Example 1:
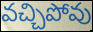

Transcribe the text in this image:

వచ్చిపోవు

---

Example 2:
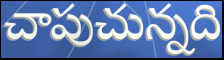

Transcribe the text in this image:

చాపుచున్నది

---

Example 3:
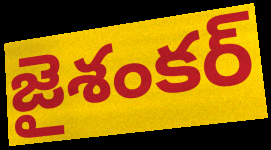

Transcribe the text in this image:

జైశంకర్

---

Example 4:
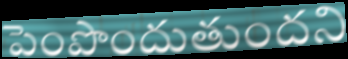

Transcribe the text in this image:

పెంపొందుతుందని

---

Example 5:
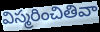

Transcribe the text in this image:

విస్మరించితివా